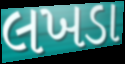
લખડા